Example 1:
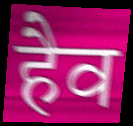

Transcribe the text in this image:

हैव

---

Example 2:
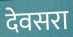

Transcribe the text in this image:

देवसरा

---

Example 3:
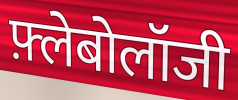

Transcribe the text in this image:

फ़्लेबोलॉजी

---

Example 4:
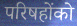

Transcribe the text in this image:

परिषहोंको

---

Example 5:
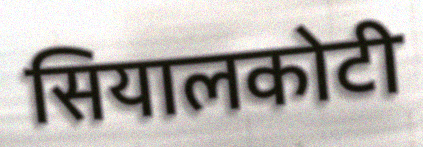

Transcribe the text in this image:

सियालकोटी